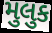
મુલુક